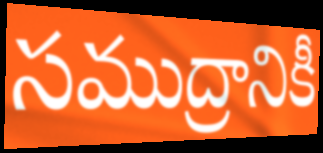
సముద్రానికీ